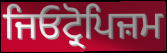
ਜਿਓਟ੍ਰੋਪਿਜ਼ਮ